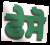
ਫੇਸੋ